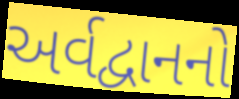
અર્વદ્વાનનો